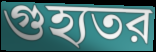
গুহ্যতর